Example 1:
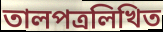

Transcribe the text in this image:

তালপত্রলিখিত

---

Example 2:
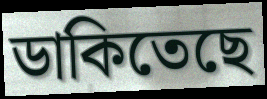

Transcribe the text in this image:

ডাকিতেছে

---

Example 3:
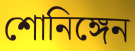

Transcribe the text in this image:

শোনিঙ্গেন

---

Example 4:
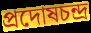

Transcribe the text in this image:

প্রদোষচন্দ্র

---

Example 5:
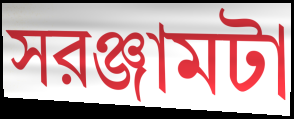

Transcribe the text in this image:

সরঞ্জামটা